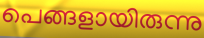
പെങ്ങളായിരുന്നു